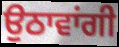
ਉਠਾਵਾਂਗੀ